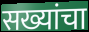
सख्यांचा